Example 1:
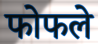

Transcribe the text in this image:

फोफले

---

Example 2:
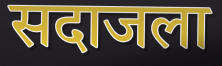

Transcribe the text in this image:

सदाजला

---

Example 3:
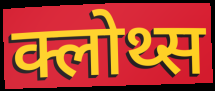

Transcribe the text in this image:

क्लोथ्स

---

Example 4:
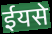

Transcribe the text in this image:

ईयसे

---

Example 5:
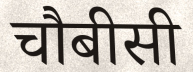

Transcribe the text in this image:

चौबीसी